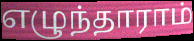
எழுந்தாராம்